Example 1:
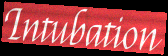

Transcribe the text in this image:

Intubation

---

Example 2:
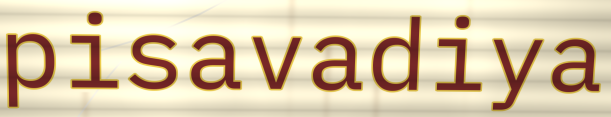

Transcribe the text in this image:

pisavadiya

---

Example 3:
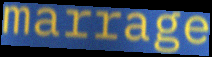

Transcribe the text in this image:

marrage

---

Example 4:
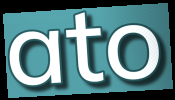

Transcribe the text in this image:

ato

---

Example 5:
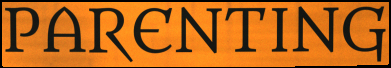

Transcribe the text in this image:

PARENTING